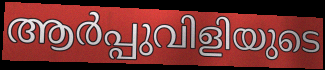
ആർപ്പുവിളിയുടെ